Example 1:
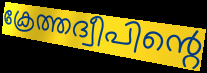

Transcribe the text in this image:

ക്രേത്തദ്വീപിന്റെ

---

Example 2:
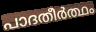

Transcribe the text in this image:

പാദതീർത്ഥം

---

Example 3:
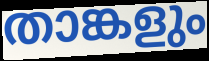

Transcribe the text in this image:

താങ്കളും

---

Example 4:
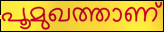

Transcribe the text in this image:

പൂമുഖത്താണ്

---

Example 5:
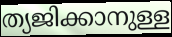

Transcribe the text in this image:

ത്യജിക്കാനുള്ള